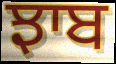
ਝਾਬ